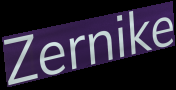
Zernike